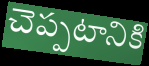
చెప్పటానికి